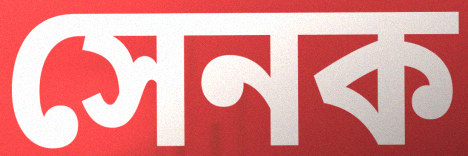
সেনক